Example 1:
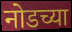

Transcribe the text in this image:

नोडच्या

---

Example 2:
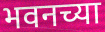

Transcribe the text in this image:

भवनच्या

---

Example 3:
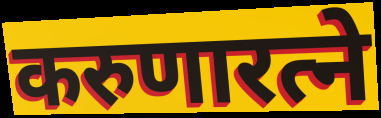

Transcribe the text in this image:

करुणारत्ने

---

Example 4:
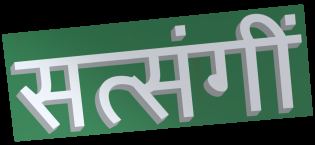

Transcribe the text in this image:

सत्संगीं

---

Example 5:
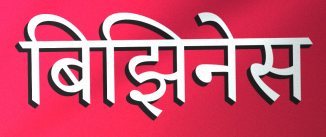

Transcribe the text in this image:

बिझिनेस